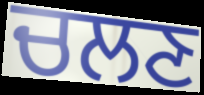
ਚਲਣ